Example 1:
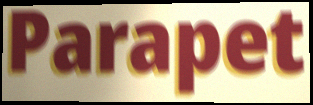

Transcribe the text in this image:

Parapet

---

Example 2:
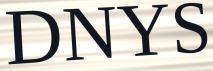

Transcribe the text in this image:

DNYS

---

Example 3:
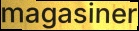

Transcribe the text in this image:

magasiner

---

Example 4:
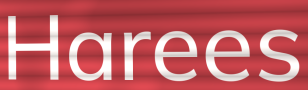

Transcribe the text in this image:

Harees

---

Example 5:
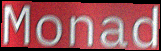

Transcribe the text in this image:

Monad